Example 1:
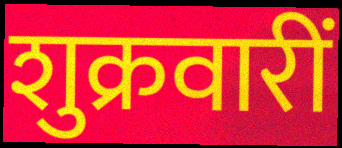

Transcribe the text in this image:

शुक्रवारीं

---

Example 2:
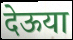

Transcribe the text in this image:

देऊया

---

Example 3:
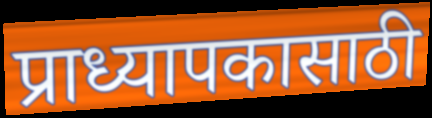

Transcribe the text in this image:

प्राध्यापकासाठी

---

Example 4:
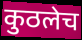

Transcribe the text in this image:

कुठलेच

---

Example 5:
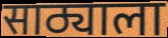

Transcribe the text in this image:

साठ्याला